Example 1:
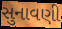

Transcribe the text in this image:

સુનાવણી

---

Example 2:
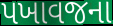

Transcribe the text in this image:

પખાવજના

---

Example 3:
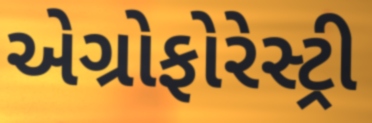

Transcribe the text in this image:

એગ્રોફોરેસ્ટ્રી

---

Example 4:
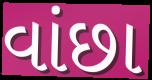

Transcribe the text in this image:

વાંછા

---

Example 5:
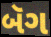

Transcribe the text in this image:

બૅગ